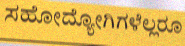
ಸಹೋದ್ಯೋಗಿಗಳೆಲ್ಲರೂ